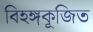
বিহঙ্গকূজিত